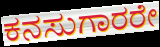
ಕನಸುಗಾರರೇ